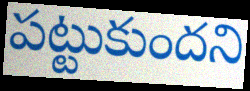
పట్టుకుందని